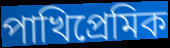
পাখিপ্রেমিক